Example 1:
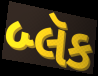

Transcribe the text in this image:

બ્લૅક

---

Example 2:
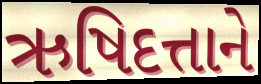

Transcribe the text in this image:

ઋષિદત્તાને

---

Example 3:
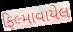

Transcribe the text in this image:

ફિલ્માવાયેલ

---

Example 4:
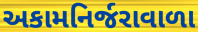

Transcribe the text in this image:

અકામનિર્જરાવાળા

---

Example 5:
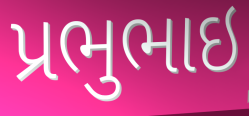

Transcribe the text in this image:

પ્રભુભાઇ